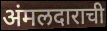
अंमलदाराची